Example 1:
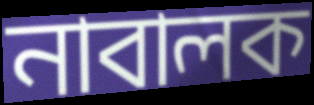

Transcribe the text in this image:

নাবালক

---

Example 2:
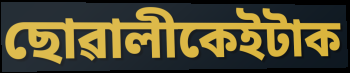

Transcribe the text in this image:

ছোৱালীকেইটাক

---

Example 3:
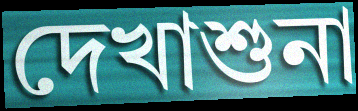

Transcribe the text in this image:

দেখাশুনা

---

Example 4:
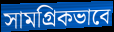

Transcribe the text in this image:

সামগ্ৰিকভাবে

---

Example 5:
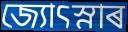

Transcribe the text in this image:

জ্যোৎস্নাৰ